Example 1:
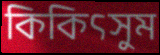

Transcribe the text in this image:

কিকিৎসুম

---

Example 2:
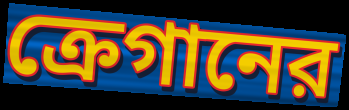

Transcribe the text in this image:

ক্রেগানের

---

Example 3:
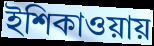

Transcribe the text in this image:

ইশিকাওয়ায়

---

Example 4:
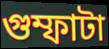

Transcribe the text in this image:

গুম্ফাটা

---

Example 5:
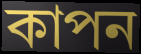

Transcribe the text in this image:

কাপন